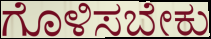
ಗೊಳಿಸಬೇಕು